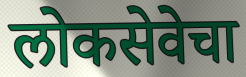
लोकसेवेचा